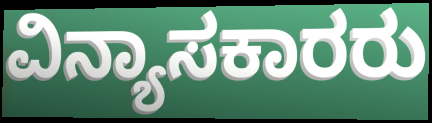
ವಿನ್ಯಾಸಕಾರರು